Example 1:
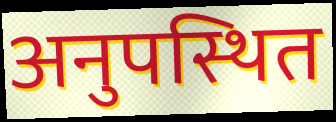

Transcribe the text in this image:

अनुपस्थित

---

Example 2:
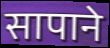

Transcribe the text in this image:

सापाने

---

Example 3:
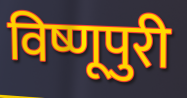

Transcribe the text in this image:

विष्णूपुरी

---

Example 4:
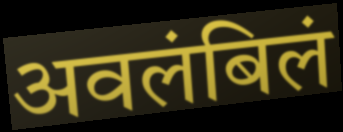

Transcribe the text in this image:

अवलंबिलं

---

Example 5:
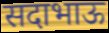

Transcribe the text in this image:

सदाभाऊ